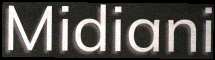
Midiani